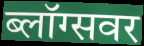
ब्लॉग्सवर